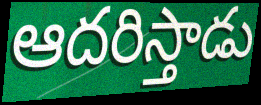
ఆదరిస్తాడు